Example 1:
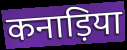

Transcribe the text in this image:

कनाड़िया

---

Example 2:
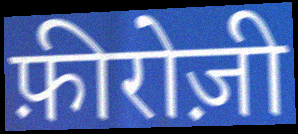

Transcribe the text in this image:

फ़ीरोज़ी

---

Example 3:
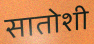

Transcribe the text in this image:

सातोशी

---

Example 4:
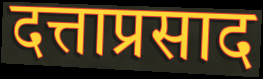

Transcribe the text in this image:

दत्ताप्रसाद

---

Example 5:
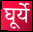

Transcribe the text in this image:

घूर्ये